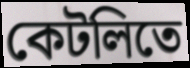
কেটলিতে